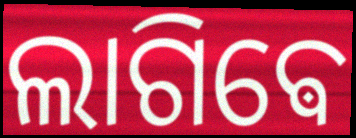
ଲାଗିଵେ